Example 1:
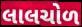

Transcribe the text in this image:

લાલચોળ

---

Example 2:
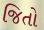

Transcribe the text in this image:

જિતો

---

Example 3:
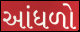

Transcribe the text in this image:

આંધળો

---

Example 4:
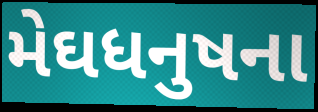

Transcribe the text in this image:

મેઘધનુષના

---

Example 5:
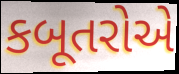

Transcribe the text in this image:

કબૂતરોએ